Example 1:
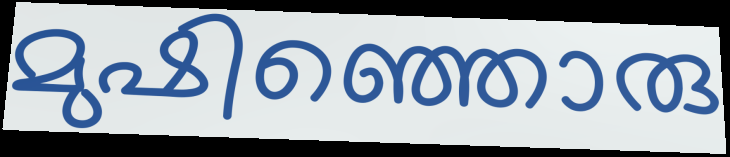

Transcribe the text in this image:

മുഷിഞ്ഞൊരു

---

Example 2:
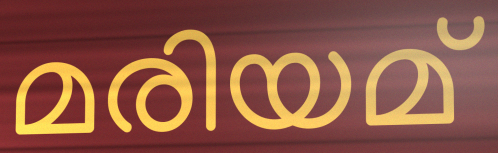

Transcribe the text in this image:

മരിയമ്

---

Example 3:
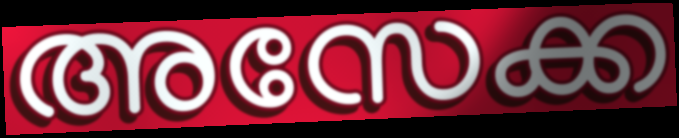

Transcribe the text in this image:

അസേക്ക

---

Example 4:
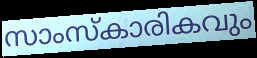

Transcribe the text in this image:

സാംസ്കാരികവും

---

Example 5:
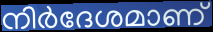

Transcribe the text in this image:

നിർദേശമാണ്